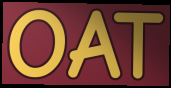
OAT